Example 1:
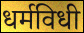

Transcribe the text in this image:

धर्मविधी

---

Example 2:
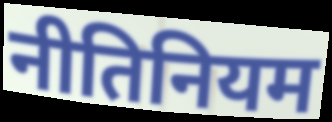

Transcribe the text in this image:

नीतिनियम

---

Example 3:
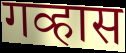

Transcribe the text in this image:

गव्हास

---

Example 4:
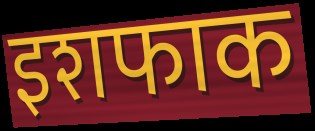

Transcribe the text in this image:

इशफाक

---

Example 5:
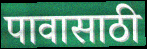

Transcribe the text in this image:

पावासाठी